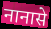
नानासे